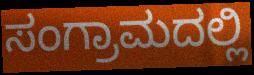
ಸಂಗ್ರಾಮದಲ್ಲಿ